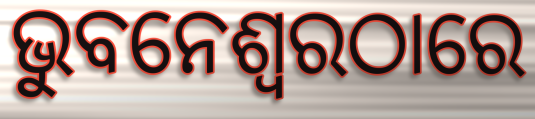
ଭୁବନେଶ୍ଵରଠାରେ